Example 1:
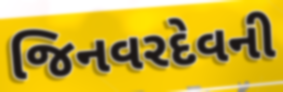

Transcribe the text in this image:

જિનવરદેવની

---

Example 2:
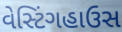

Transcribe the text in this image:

વેસ્ટિંગહાઉસ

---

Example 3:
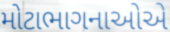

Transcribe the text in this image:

મોટાભાગનાઓએ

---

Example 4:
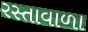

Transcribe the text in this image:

રસ્તાવાળા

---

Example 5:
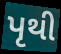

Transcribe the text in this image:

પૃથી